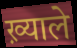
ख़्याले